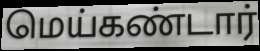
மெய்கண்டார்